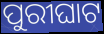
ପୁରୀଘାଟ